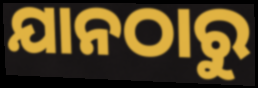
ଯାନଠାରୁ